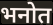
भनोत